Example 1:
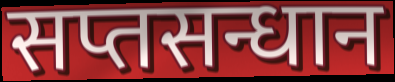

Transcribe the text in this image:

सप्तसन्धान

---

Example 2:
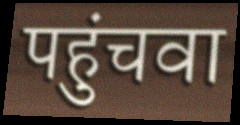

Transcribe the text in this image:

पहुंचवा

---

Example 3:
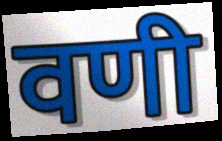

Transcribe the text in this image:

वणी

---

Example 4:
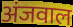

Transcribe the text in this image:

अंजवाल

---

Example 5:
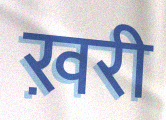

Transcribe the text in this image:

ख़री